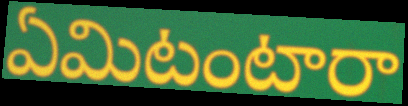
ఏమిటంటారా